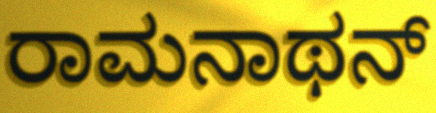
ರಾಮನಾಥನ್